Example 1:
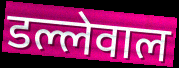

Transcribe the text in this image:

डल्लेवाल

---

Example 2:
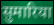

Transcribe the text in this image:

सुमारिया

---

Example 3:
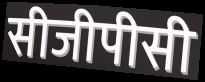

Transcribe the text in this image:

सीजीपीसी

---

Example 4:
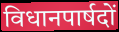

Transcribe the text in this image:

विधानपार्षदों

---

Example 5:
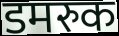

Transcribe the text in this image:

डमरुक